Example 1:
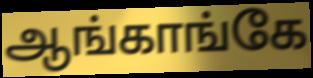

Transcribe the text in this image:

ஆங்காங்கே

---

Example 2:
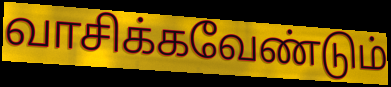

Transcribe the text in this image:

வாசிக்கவேண்டும்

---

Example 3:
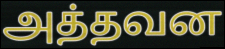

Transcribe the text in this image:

அத்தவன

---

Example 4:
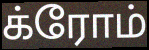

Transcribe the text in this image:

க்ரோம்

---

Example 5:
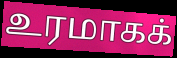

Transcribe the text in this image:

உரமாகக்